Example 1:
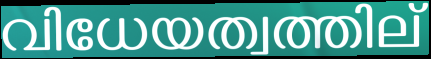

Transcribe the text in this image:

വിധേയത്വത്തില്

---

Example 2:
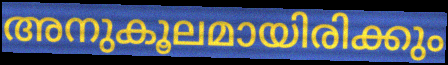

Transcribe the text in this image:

അനുകൂലമായിരിക്കും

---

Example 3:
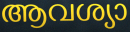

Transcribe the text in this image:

ആവശ്യാ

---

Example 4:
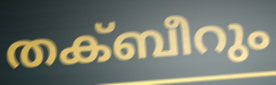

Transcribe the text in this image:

തക്ബീറും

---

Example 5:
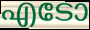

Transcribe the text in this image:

എടോ